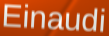
Einaudi